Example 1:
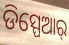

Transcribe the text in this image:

ଡିସ୍ପେଆର୍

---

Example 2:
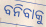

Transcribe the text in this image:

ବନିବାକୁ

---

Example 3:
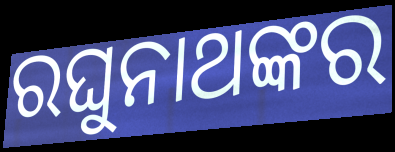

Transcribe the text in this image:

ରଘୁନାଥଙ୍କର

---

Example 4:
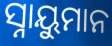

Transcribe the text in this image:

ସ୍ନାୟୁମାନ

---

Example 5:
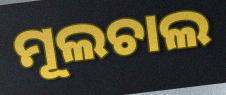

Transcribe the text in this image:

ମୂଲଚାଲ